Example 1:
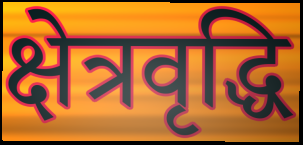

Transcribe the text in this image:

क्षेत्रवृद्धि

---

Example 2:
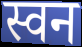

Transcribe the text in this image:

स्वन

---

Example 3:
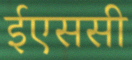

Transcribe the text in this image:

ईएससी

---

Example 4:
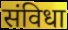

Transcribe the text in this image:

संविधा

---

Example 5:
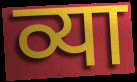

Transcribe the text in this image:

व्या